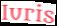
Iuris